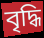
বৃদ্ধি